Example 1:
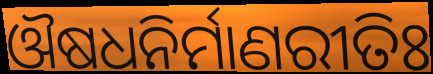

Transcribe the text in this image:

ଔଷଧନିର୍ମାଣରୀତିଃ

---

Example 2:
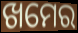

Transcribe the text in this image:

ଖମେର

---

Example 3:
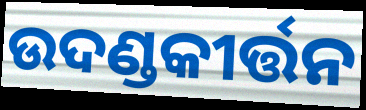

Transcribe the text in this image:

ଉଦଣ୍ଡକୀର୍ତ୍ତନ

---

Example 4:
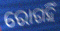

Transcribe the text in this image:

ରୋଗହିଁ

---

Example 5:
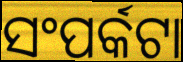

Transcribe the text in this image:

ସଂପର୍କଟା